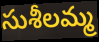
సుశీలమ్మ